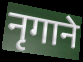
नृगाने